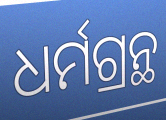
ଧର୍ମଗ୍ରନ୍ଥ